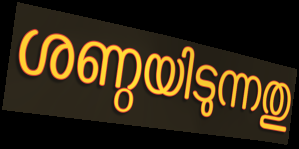
ശണ്ഠയിടുന്നതു